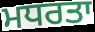
ਮਧਰਤਾ